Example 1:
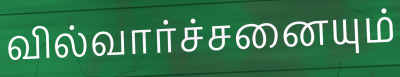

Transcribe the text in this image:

வில்வார்ச்சனையும்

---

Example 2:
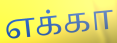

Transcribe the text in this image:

எக்கா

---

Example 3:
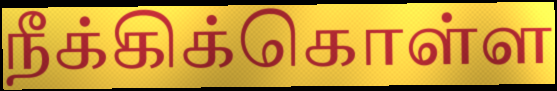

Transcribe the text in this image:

நீக்கிக்கொள்ள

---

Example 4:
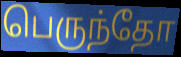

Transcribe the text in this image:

பெருந்தோ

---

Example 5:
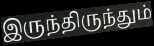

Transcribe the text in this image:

இருந்திருந்தும்